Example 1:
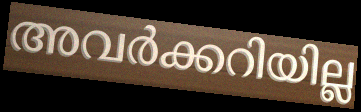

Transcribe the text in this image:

അവർക്കറിയില്ല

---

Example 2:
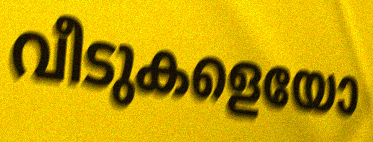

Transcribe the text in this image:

വീടുകളെയോ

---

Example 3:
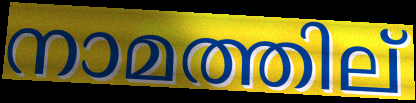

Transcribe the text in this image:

നാമത്തില്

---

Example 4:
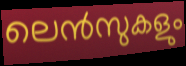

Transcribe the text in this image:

ലെൻസുകളും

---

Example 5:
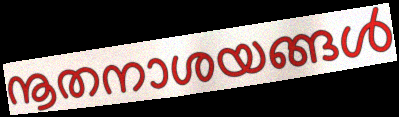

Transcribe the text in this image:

നൂതനാശയങ്ങൾ